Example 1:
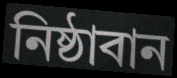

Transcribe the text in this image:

নিষ্ঠাবান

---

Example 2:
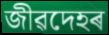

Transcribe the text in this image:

জীৱদেহৰ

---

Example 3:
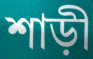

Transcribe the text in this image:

শাড়ী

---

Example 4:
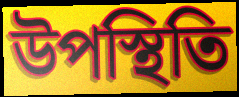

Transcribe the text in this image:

উপস্থিতি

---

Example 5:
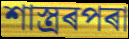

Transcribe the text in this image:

শাস্ত্ৰৰপৰা